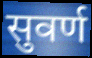
सुवर्ण